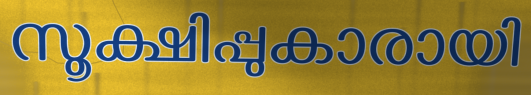
സൂക്ഷിപ്പുകാരായി